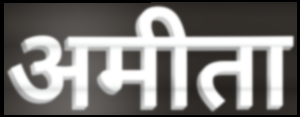
अमीता